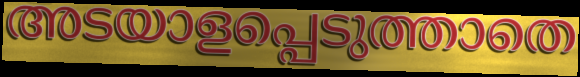
അടയാളപ്പെടുത്താതെ